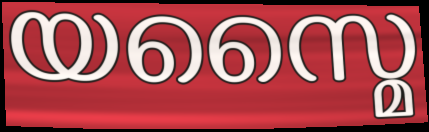
യസ്മൈ